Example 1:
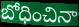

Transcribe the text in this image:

బోధించినా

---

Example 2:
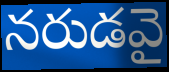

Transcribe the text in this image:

నరుడవై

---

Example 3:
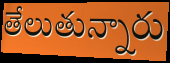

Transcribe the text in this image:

తేలుతున్నారు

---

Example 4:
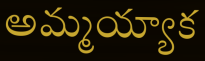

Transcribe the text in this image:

అమ్మయ్యాక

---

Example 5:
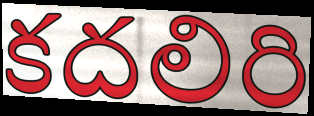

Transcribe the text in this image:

కదలిరి